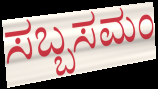
ಸಬ್ಬಸಮಂ